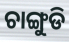
ଚାଙ୍ଗୁଡି